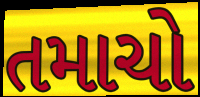
તમાચો